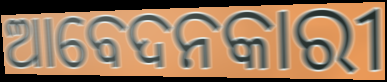
ଆବେଦନକାରୀ